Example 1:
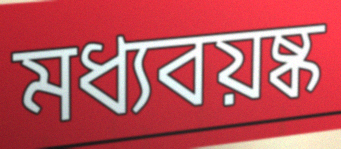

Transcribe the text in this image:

মধ্যবয়ষ্ক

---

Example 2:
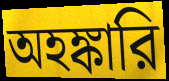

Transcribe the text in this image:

অহঙ্কারি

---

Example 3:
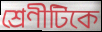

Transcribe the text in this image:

শ্রেণীটিকে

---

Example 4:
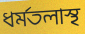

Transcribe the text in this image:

ধর্মতলাস্থ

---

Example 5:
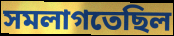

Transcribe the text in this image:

সমলাগতেছিল